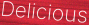
Delicious